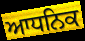
ਆਧਨਿਕ